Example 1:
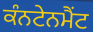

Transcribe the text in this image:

ਕੰਨਟੇਨਮੈਂਟ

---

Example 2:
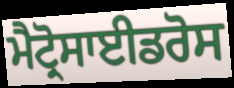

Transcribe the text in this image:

ਮੈਟ੍ਰੋਸਾਈਡਰੋਸ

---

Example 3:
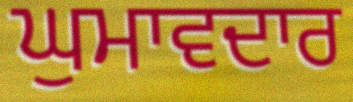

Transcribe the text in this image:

ਘੁਮਾਵਦਾਰ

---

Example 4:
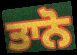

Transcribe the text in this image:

ਤਾਨੋ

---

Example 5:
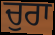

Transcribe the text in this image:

ਚੁਰਾ